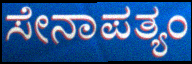
ಸೇನಾಪತ್ಯಂ